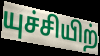
யுச்சியிற்